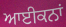
ਆਈਕਨਾਂ